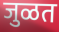
जुळत